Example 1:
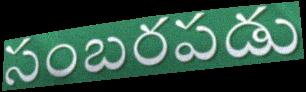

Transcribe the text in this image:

సంబరపడు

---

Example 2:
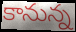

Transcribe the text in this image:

కానున్న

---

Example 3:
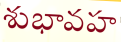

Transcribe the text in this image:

శుభావహ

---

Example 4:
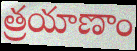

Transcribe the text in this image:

త్రయాణాం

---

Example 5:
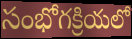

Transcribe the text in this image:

సంభోగక్రియలో